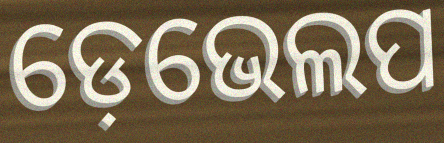
ଡ଼େଭେଲପ